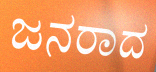
ಜನರಾದ